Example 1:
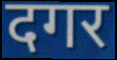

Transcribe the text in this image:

दगर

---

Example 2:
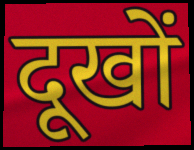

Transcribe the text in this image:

दूखों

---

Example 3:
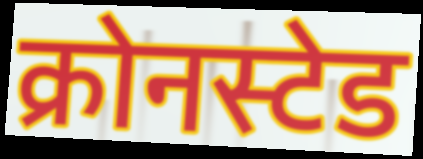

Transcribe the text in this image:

क्रोनस्टेड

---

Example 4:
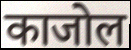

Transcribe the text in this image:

काजोल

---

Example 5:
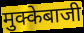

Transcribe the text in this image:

मुक्केबाजी